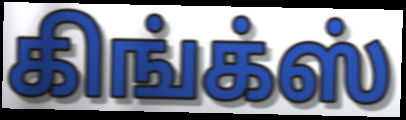
கிங்க்ஸ்